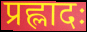
प्रह्लादः